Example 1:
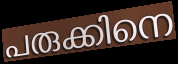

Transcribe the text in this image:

പരുക്കിനെ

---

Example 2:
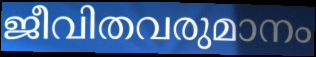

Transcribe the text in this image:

ജീവിതവരുമാനം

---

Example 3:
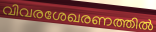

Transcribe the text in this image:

വിവരശേഖരണത്തിൽ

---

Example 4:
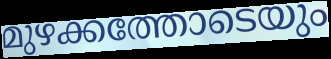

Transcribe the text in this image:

മുഴക്കത്തോടെയും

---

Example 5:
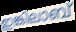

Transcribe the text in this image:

ഇങ്കിലാബ്